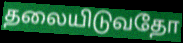
தலையிடுவதோ